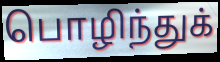
பொழிந்துக்